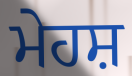
ਮੇਹਸ਼